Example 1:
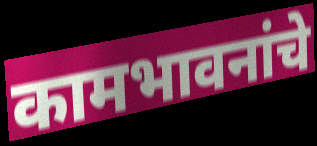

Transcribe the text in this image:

कामभावनांचे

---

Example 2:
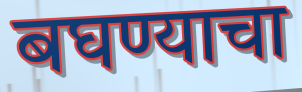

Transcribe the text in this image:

बघण्याचा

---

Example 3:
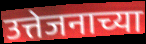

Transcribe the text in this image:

उत्तेजनाच्या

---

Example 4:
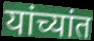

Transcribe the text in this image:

यांच्यांत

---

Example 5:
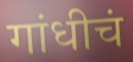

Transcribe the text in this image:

गांधीचं